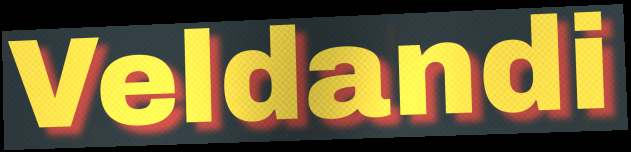
Veldandi